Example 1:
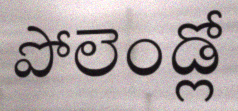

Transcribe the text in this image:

పోలెండ్లో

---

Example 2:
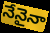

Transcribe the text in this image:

నేనైనా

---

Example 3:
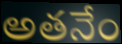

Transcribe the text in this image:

అతనేం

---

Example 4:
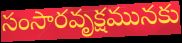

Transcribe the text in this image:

సంసారవృక్షమునకు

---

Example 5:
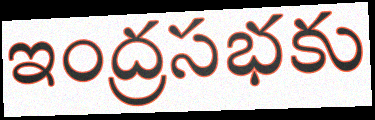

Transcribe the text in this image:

ఇంద్రసభకు